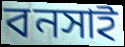
বনসাই